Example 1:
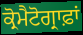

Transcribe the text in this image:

ਕ੍ਰੋਮੈਟੋਗ੍ਰਾਫ਼ਾਂ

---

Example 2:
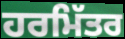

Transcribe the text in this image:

ਹਰਮਿੱਤਰ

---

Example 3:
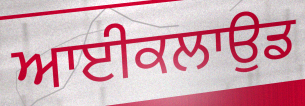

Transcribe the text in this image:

ਆਈਕਲਾਉਡ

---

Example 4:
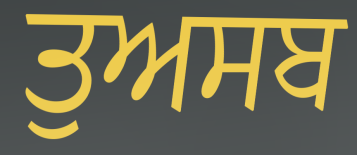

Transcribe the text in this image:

ਤੁਅਸਬ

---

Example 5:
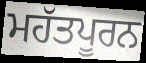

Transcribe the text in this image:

ਮਹੱਤਪੂਰਨ